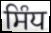
ਸਿੰਧ